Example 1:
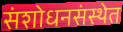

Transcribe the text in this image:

संशोधनसंस्थेत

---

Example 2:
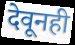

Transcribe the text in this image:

देवूनही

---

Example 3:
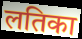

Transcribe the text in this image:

लतिका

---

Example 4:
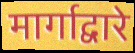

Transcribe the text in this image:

मार्गाद्वारे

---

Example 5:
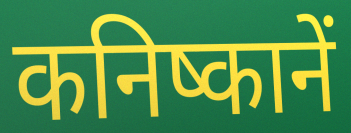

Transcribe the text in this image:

कनिष्कानें